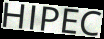
HIPEC